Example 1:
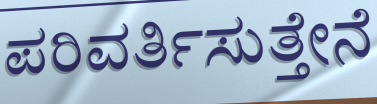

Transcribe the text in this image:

ಪರಿವರ್ತಿಸುತ್ತೇನೆ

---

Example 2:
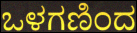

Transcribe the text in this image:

ಒಳಗಣಿಂದ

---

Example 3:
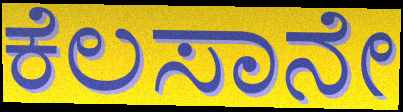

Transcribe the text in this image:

ಕೆಲಸಾನೇ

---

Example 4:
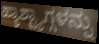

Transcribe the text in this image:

ಹ್ಯಾಶ್ಟ್ಯಾಗ್ಗಳನ್ನು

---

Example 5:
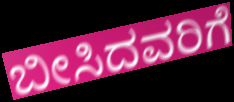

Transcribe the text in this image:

ಬೀಸಿದವರಿಗೆ